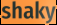
shaky